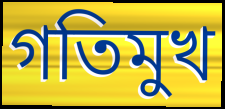
গতিমুখ